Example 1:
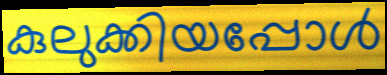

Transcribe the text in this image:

കുലുക്കിയപ്പോൾ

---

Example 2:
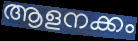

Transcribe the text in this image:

ആളനക്കം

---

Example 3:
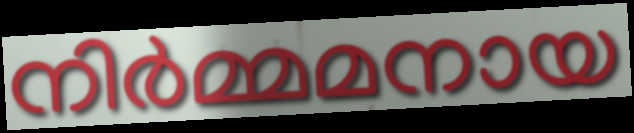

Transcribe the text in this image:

നിർമ്മമനായ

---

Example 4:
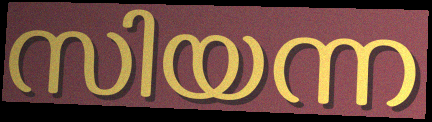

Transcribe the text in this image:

സിയന്ന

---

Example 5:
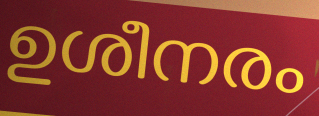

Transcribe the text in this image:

ഉശീനരം